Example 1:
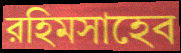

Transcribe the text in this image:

রহিমসাহেব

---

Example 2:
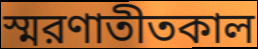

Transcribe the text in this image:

স্মরণাতীতকাল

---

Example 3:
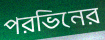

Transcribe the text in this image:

পরভিনের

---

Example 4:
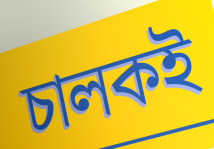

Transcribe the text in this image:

চালকই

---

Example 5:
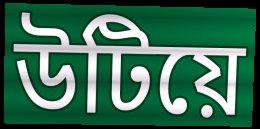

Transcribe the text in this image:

উটিয়ে